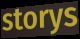
storys